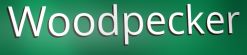
Woodpecker